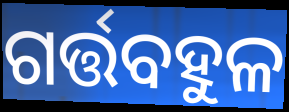
ଗର୍ତ୍ତବହୁଳ